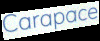
Carapace